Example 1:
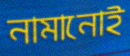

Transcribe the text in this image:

নামানোই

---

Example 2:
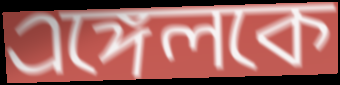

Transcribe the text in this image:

এঙ্গেলকে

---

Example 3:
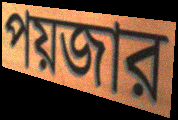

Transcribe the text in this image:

পয়জার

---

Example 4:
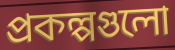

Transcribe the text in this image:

প্রকল্পগুলো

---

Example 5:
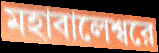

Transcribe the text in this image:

মহাবালেশ্বরে